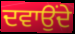
ਦਵਾਉਂਦੇ